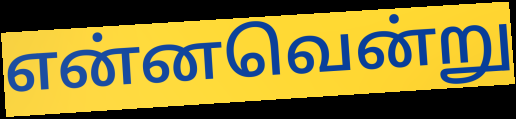
என்னவென்று